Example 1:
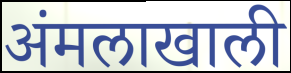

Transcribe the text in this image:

अंमलाखाली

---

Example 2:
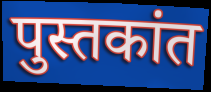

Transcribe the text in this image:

पुस्तकांत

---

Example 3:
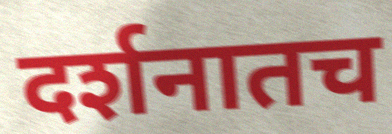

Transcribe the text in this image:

दर्शनातच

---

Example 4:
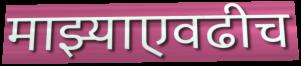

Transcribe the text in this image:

माझ्याएवढीच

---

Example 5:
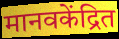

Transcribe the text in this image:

मानवकेंद्रित